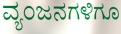
ವ್ಯಂಜನಗಳಿಗೂ